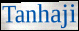
Tanhaji